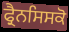
ਫ੍ਰੈਨਸਿਸਕੋ